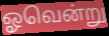
ஓவென்று